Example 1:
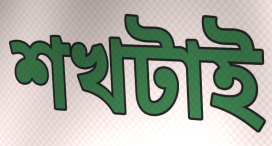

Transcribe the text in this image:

শখটাই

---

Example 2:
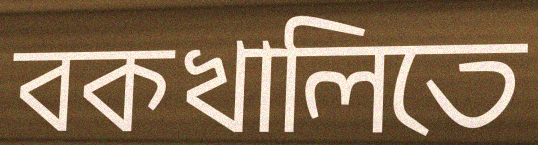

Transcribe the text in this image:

বকখালিতে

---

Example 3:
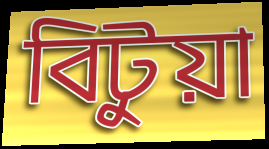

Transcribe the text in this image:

বিটুয়া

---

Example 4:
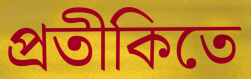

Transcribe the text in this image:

প্রতীকিতে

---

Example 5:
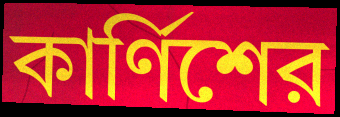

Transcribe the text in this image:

কার্ণিশের